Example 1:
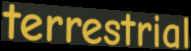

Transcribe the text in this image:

terrestrial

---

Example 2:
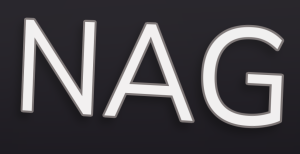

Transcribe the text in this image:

NAG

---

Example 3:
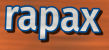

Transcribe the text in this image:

rapax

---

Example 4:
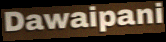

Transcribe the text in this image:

Dawaipani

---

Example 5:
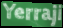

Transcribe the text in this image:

Yerraji